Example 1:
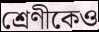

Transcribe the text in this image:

শ্রেণীকেও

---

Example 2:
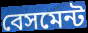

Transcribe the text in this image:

বেসমেন্ট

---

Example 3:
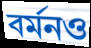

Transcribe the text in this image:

বর্মনও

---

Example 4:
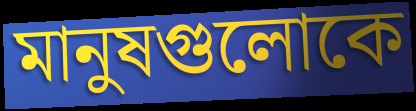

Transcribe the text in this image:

মানুষগুলোকে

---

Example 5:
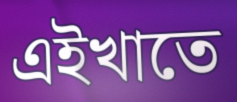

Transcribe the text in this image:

এইখাতে